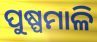
ପୁଷ୍ପମାଳି